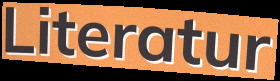
Literatur